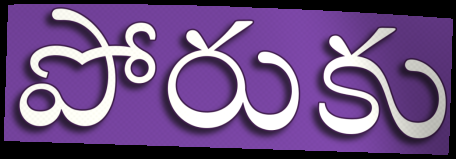
పోరుకు